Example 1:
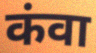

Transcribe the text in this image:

कंवा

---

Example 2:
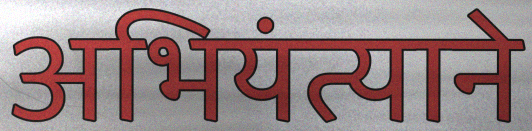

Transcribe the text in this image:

अभियंत्याने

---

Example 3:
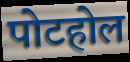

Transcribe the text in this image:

पोटहोल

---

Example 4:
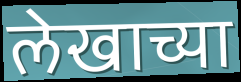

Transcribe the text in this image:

लेखाच्या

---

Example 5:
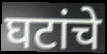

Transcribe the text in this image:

घटांचे